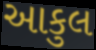
આકુલ